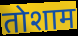
तोशाम